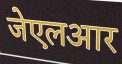
जेएलआर